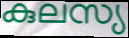
കുലസ്യ